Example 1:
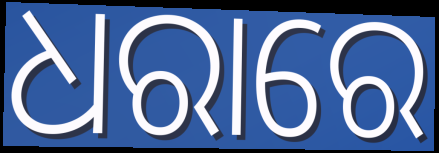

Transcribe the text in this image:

ଧରାରେ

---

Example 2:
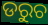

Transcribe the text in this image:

ଡରୁଚ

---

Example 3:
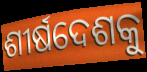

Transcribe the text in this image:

ଶୀର୍ଷଦେଶକୁ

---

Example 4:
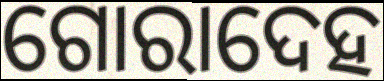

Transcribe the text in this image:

ଗୋରାଦେହ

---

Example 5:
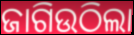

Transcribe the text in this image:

ଜାଗିଉଠିଲା